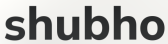
shubho